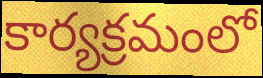
కార్యక్రమంలో